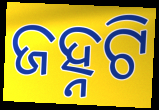
ଜହ୍ନଟି